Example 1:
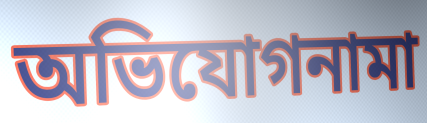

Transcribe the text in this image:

অভিযোগনামা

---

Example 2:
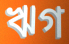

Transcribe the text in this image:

ঋগ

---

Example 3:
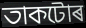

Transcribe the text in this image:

তাকটোৰ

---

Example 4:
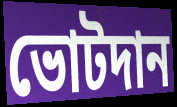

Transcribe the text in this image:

ভোটদান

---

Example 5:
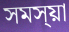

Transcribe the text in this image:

সমস্য়া